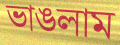
ভাঙলাম